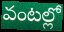
వంటల్లో